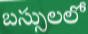
బస్సులలో